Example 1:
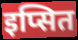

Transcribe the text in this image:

इप्सित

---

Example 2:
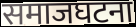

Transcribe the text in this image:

समाजघटना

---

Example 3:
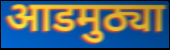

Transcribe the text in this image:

आडमुठ्या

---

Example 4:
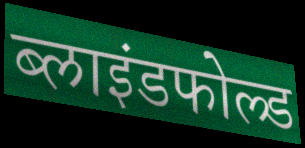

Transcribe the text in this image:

ब्लाइंडफोल्ड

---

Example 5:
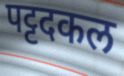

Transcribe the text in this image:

पट्टदकल